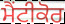
ਮੈਂਟੀਕੋਰ